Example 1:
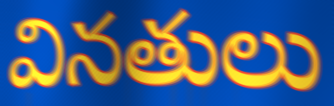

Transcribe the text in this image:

వినతులు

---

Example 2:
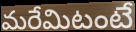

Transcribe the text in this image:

మరేమిటంటే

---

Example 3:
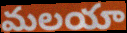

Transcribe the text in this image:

మలయా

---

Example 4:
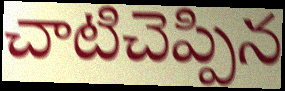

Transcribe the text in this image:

చాటిచెప్పిన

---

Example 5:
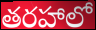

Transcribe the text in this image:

తరహాలో